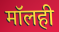
मॉलही